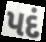
પદં